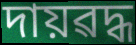
দায়ৱদ্ধ